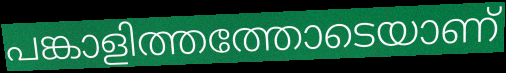
പങ്കാളിത്തത്തോടെയാണ്